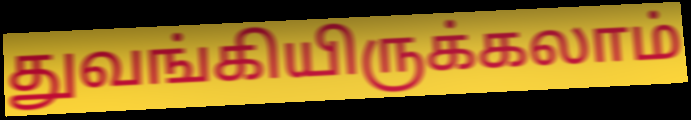
துவங்கியிருக்கலாம்